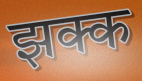
झक्क